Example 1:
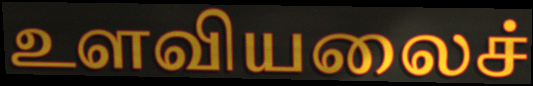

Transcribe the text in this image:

உளவியலைச்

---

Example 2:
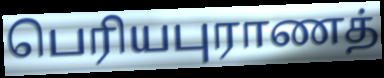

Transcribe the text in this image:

பெரியபுராணத்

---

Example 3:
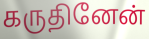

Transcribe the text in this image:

கருதினேன்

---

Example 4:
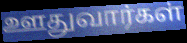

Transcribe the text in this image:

ஊதுவார்கள்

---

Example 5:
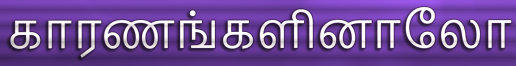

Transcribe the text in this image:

காரணங்களினாலோ